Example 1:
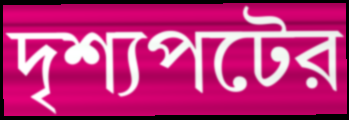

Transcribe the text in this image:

দৃশ্যপটের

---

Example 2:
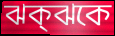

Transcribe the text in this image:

ঝক্‌ঝকে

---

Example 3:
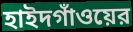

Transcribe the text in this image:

হাইদগাঁওয়ের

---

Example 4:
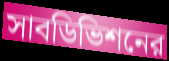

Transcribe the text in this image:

সাবডিভিশনের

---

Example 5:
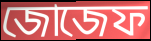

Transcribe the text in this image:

জোজেফ